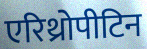
एरिथ्रोपीटिन